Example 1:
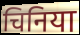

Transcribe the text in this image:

चिनिया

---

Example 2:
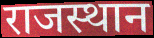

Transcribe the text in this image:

राजस्‍थान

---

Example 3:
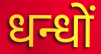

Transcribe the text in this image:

धन्धों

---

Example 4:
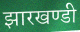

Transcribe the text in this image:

झारखण्डी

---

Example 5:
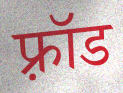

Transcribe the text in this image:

फ़्रॉड